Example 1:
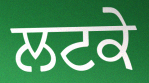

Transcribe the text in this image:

ਲਟਕੇ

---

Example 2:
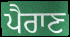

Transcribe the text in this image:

ਪੈਰਾਣ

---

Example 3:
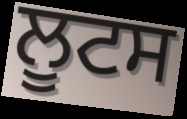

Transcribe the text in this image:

ਲੂਟਸ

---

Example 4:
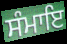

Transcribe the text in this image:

ਸੰਮਾਇ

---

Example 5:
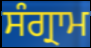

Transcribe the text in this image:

ਸੰਗ੍ਰਾਮ